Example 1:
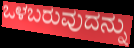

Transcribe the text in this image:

ಒಳಬರುವುದನ್ನು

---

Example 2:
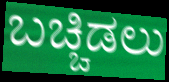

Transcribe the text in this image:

ಬಚ್ಚಿಡಲು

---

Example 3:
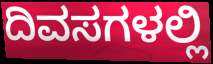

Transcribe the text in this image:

ದಿವಸಗಳಲ್ಲಿ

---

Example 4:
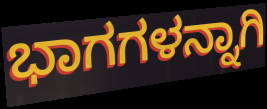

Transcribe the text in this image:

ಭಾಗಗಳನ್ನಾಗಿ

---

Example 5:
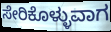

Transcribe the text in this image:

ಸೇರಿಕೊಳ್ಳುವಾಗ